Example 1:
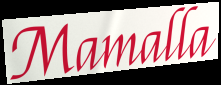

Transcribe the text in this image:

Mamalla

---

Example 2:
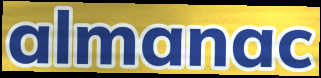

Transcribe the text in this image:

almanac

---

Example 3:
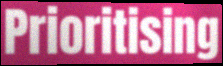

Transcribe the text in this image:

Prioritising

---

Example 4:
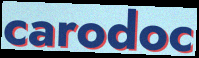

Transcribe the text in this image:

carodoc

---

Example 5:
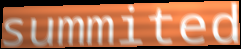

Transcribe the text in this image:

summited